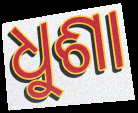
ଧୁଶା